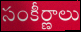
సంకీర్ణాలు